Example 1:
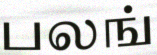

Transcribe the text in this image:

பலங்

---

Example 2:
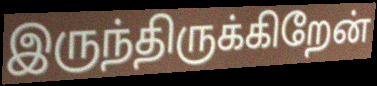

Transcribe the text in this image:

இருந்திருக்கிறேன்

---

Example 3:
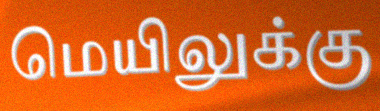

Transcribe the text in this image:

மெயிலுக்கு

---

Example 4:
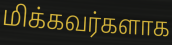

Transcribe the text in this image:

மிக்கவர்களாக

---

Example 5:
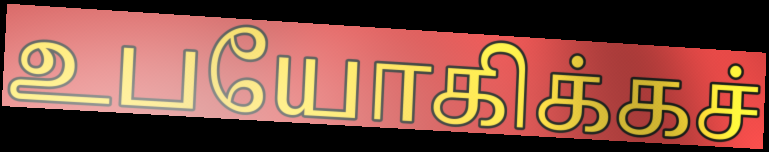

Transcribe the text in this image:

உபயோகிக்கச்